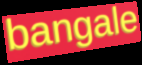
bangale